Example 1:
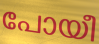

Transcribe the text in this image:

പോയീ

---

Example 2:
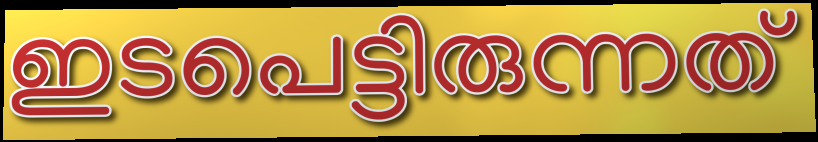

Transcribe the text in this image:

ഇടപെട്ടിരുന്നത്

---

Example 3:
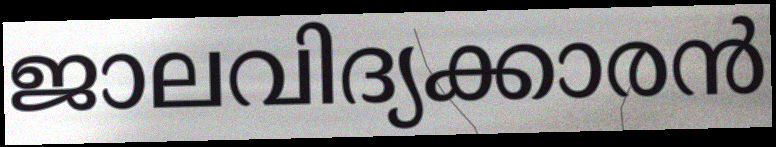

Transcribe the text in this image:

ജാലവിദ്യക്കാരൻ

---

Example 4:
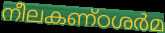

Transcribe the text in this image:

നീലകണ്ഠശർമ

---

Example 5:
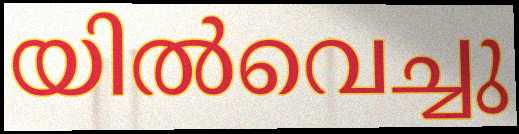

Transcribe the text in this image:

യിൽവെച്ചു